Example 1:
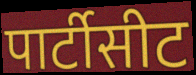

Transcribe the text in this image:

पार्टीसीट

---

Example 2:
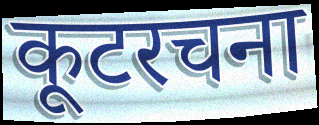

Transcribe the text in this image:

कूटरचना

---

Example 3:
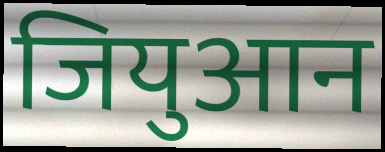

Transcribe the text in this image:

जियुआन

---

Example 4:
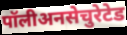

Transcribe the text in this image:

पॉलीअनसेचुरेटेड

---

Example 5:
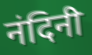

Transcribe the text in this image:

नंदिनी